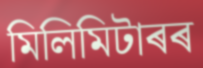
মিলিমিটাৰৰ